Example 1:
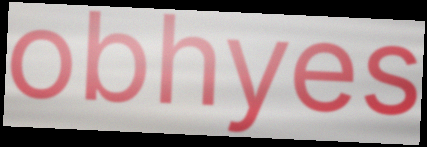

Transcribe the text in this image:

obhyes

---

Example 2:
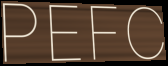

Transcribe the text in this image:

PEFC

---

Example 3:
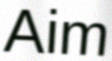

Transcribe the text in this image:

Aim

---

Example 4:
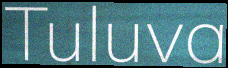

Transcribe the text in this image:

Tuluva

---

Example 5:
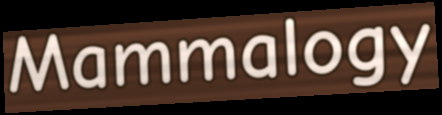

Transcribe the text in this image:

Mammalogy